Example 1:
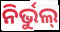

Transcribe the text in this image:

ନିର୍ଭୁଲ୍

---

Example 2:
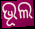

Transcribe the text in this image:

ଭୂଲ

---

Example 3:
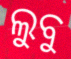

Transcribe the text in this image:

ଲୁବୁ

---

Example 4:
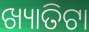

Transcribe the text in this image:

ଖ୍ୟାତିଟା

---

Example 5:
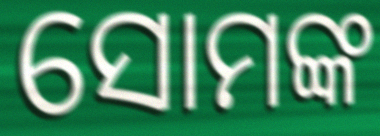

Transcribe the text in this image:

ସୋମଙ୍କ